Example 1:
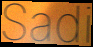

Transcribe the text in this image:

Sadi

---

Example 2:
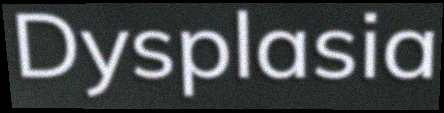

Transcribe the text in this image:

Dysplasia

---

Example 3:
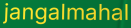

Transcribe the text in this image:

jangalmahal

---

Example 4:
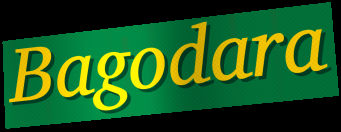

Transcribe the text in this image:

Bagodara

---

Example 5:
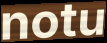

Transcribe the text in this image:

notu